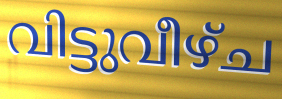
വിട്ടുവീഴ്ച